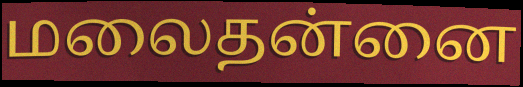
மலைதன்னை